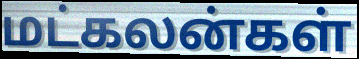
மட்கலன்கள்